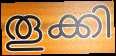
തൂക്കി